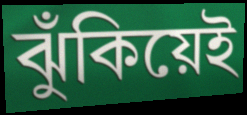
ঝুঁকিয়েই